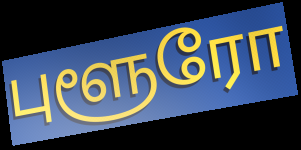
புளூரோ